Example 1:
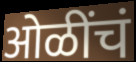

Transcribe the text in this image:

ओळींचं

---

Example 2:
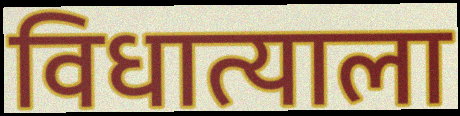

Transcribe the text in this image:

विधात्याला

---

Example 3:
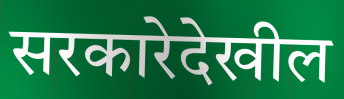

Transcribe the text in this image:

सरकारेदेखील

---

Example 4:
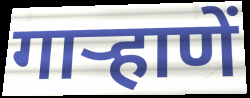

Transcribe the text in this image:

गार्‍हाणें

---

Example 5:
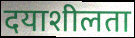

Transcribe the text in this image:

दयाशीलता